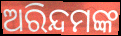
ଅରିନ୍ଦମଙ୍କ